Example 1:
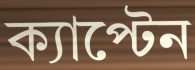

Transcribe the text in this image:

ক্যাপ্টেন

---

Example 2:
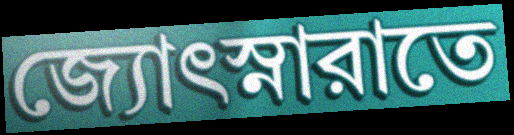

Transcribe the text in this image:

জ্যোৎস্নারাতে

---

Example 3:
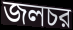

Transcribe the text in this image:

জলচর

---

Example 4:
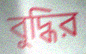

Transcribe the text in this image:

বুদ্ধির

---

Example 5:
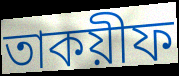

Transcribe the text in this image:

তাকয়ীফ